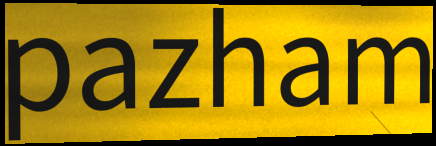
pazham